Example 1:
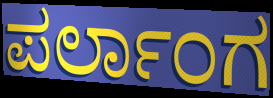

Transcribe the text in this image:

ಪರ್ಲಾಂಗ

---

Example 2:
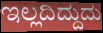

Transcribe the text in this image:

ಇಲ್ಲದಿದ್ದುದು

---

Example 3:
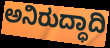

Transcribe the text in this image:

ಅನಿರುದ್ಧಾದಿ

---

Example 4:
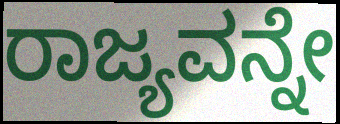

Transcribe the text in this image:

ರಾಜ್ಯವನ್ನೇ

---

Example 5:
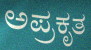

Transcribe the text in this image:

ಅಪ್ರಕೃತ